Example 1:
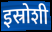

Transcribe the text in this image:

इस्रोशी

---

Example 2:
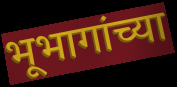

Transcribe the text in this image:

भूभागांच्या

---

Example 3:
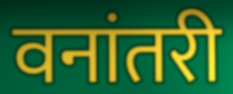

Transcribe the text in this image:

वनांतरी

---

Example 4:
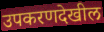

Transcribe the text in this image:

उपकरणदेखील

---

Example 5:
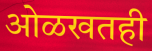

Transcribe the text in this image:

ओळखतही